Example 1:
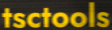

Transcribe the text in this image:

tsctools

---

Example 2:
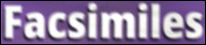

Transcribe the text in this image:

Facsimiles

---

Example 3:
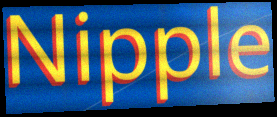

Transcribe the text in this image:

Nipple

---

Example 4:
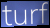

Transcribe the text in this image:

turf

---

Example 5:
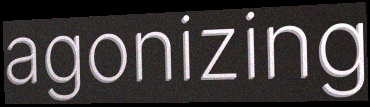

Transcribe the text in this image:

agonizing